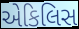
એકિલિસ